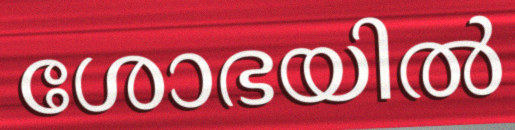
ശോഭയിൽ